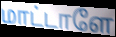
மாட்டாளே